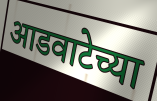
आडवाटेच्या